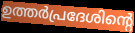
ഉത്തർപ്രദേശിന്റെ